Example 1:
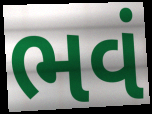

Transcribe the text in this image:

ભવં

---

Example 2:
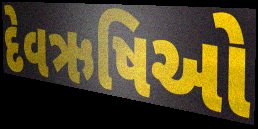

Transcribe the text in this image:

દેવઋષિઓ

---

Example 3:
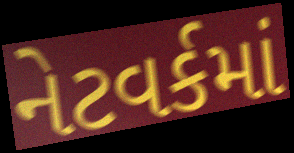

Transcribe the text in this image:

નેટવર્કમાં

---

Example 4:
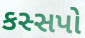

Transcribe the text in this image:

કસ્સપો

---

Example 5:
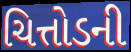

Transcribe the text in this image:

ચિત્તોડની